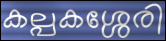
കല്പകശ്ശേരി